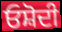
ਓਸ਼ੋਦੀ